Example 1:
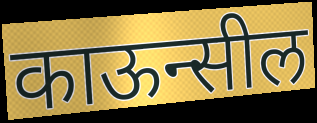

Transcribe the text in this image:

काऊन्सील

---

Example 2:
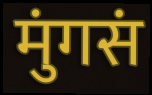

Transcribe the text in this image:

मुंगसं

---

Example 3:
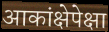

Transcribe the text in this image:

आकांक्षेपेक्षा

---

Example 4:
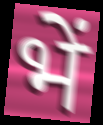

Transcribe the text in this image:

भें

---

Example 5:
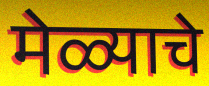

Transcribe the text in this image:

मेळ्याचे